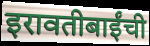
इरावतीबाईंची